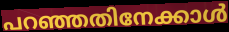
പറഞ്ഞതിനേക്കാൾ